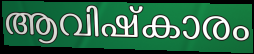
ആവിഷ്‌കാരം